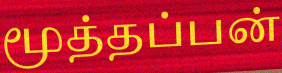
மூத்தப்பன்